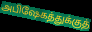
அபிஷேகத்துக்குத்